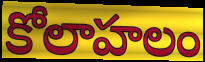
కోలాహలం